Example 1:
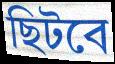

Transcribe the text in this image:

ছিটবে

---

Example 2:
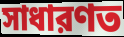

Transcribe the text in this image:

সাধারণত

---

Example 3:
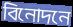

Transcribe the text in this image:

বিনোদনে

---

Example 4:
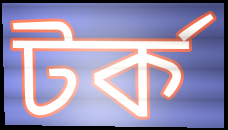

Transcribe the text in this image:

টর্ক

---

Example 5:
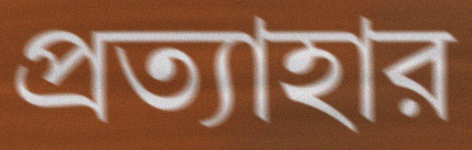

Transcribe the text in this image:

প্রত্যাহার